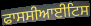
ਫਾਸਸੀਆਈਟਿਸ